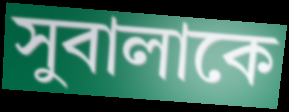
সুবালাকে